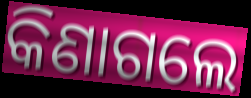
କିଣାଗଲେ